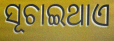
ସୂଚାଇଥାଏ